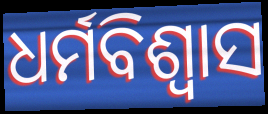
ଧର୍ମବିଶ୍ବାସ